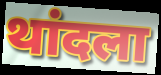
थांदला